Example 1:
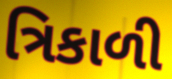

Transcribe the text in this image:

ત્રિકાળી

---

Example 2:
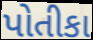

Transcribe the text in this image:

પોતીકા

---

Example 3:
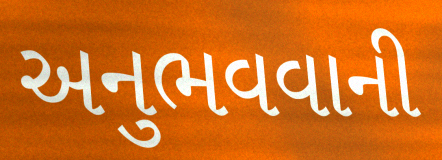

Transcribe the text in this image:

અનુભવવાની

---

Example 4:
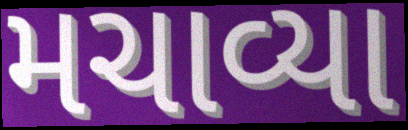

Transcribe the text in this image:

મચાવ્યા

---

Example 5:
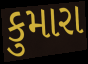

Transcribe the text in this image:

કુમારા